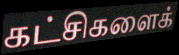
கட்சிகளைக்